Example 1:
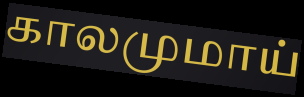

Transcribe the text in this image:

காலமுமாய்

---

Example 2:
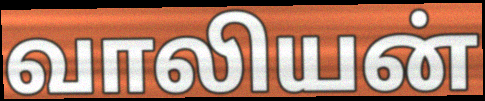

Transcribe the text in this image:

வாலியன்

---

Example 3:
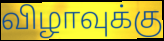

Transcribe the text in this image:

விழாவுக்கு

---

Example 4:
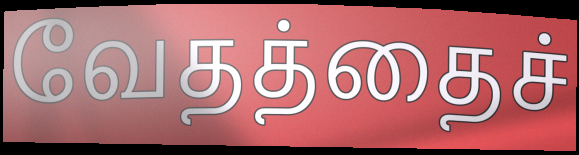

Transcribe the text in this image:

வேதத்தைச்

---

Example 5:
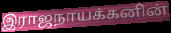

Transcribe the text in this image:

இராஜநாயக்கனின்